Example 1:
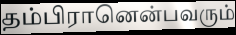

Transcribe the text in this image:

தம்பிரானென்பவரும்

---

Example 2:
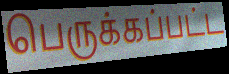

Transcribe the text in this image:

பெருக்கப்பட்ட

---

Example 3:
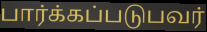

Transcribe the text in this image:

பார்க்கப்படுபவர்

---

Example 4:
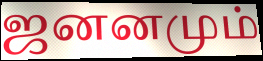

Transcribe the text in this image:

ஜனனமும்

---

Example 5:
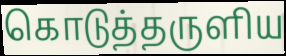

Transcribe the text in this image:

கொடுத்தருளிய